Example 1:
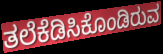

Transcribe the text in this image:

ತಲೆಕೆಡಿಸಿಕೊಂಡಿರುವ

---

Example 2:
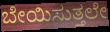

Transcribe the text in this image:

ಬೇಯಿಸುತ್ತಲೇ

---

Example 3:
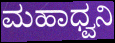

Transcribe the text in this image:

ಮಹಾಧ್ವನಿ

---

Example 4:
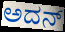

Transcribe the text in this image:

ಅದನ್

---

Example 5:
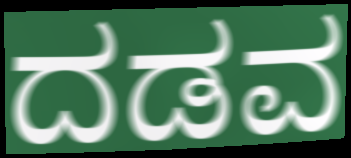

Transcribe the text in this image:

ದಡವ